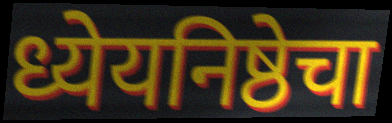
ध्येयनिष्ठेचा